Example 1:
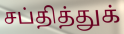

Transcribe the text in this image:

சப்தித்துக்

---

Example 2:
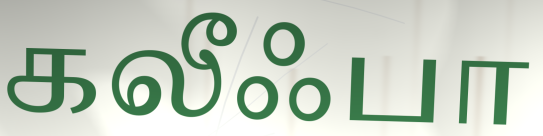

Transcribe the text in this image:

கலீஃபா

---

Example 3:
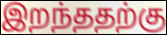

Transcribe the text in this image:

இறந்ததற்கு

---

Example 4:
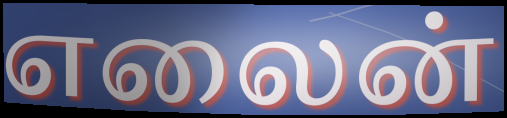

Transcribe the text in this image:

எலைன்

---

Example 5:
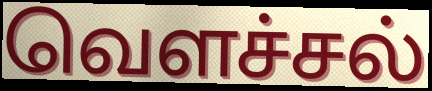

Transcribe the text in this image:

வெளச்சல்